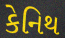
કેનિથ